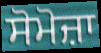
ਸੋਮੋਜ਼ਾ